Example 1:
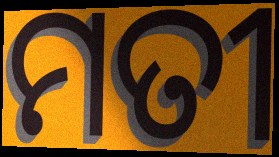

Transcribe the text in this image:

ମତୀ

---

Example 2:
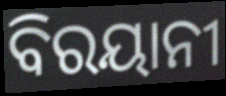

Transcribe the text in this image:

ବିରୟାନୀ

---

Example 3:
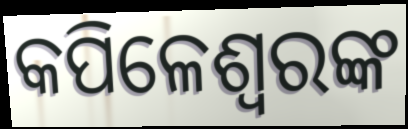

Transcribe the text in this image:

କପିଳେଶ୍ବରଙ୍କ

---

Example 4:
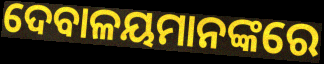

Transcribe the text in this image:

ଦେବାଳୟମାନଙ୍କରେ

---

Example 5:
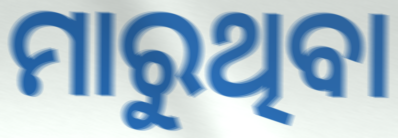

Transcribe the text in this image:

ମାରୁଥିବା